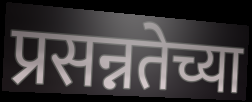
प्रसन्नतेच्या